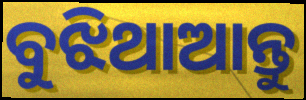
ବୁଝିଥାଆନ୍ତୁ